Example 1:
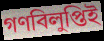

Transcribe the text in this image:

গণবিলুপ্তিই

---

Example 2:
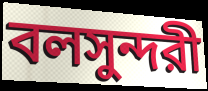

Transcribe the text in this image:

বলসুন্দরী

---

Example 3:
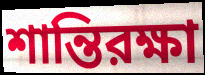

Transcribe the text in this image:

শান্তিরক্ষা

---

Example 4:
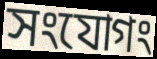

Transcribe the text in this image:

সংযোগং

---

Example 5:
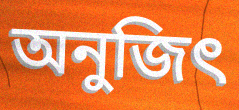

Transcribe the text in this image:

অনুজিৎ